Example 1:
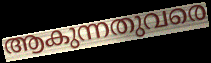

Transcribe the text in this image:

ആകുന്നതുവരെ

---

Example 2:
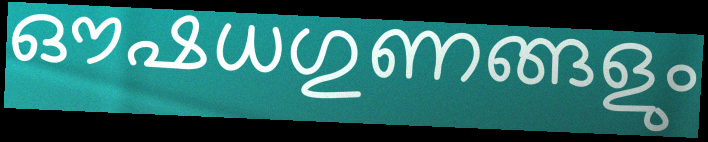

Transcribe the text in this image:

ഔഷധഗുണങ്ങളും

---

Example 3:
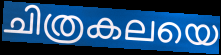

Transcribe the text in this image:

ചിത്രകലയെ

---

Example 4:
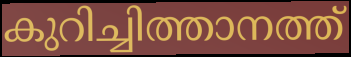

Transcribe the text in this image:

കുറിച്ചിത്താനത്ത്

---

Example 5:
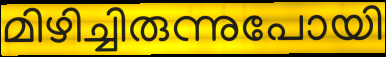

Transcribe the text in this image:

മിഴിച്ചിരുന്നുപോയി